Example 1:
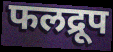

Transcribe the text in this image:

फलद्रूप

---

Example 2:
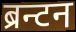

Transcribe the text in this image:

ब्रन्टन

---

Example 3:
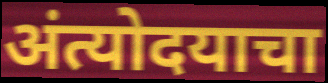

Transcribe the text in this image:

अंत्योदयाचा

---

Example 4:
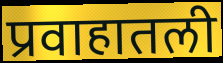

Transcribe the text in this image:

प्रवाहातली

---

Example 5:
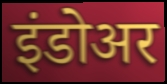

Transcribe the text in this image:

इंडोअर